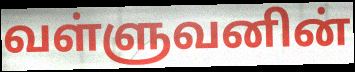
வள்ளுவனின்